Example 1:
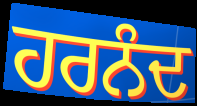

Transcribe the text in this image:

ਹਰਨੰਦ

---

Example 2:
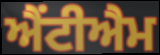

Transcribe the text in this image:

ਐਂਟੀਐਮ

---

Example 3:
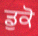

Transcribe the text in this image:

ਡੁਕੋ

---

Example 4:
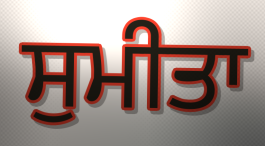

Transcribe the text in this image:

ਸੁਮੀਤਾ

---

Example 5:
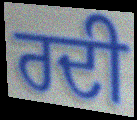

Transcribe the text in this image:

ਰਦੀ